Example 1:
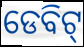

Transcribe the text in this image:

ଡେବିଟ୍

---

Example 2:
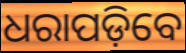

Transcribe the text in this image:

ଧରାପଡ଼ିବେ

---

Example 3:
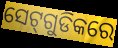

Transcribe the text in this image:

ସେଟ୍‌ଗୁଡିକରେ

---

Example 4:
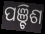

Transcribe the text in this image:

ପଞ୍ଚିଶ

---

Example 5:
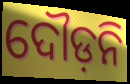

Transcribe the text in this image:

ଦୌଡ଼ନି